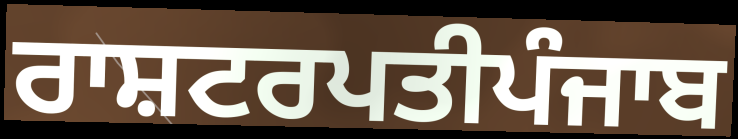
ਰਾਸ਼ਟਰਪਤੀਪੰਜਾਬ